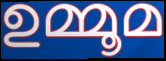
ഉമ്മൂമ